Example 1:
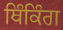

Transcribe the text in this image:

ਥਿੰਕਿੰਗ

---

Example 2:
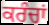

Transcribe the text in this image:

ਕਰੰਚਾਂ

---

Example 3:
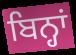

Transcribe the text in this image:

ਬਿਨ੍ਹਾਂ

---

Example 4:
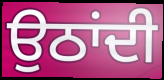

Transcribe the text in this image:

ਉਠਾਂਦੀ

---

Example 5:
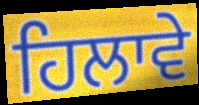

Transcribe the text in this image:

ਹਿਲਾਵੇ